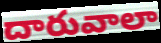
దారువాలా